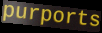
purports